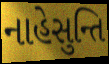
નાહેસુન્તિ